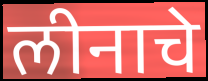
लीनाचे